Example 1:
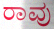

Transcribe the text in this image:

ರಾವು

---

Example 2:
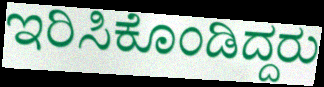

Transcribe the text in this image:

ಇರಿಸಿಕೊಂಡಿದ್ದರು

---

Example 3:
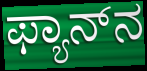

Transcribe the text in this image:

ಫ್ಯಾನ್‌ನ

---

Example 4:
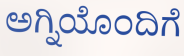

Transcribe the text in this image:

ಅಗ್ನಿಯೊಂದಿಗೆ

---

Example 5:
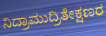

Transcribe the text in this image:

ನಿದ್ರಾಮುದ್ರಿತೇಕ್ಷಣರ